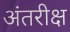
अंतरीक्ष